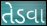
તેડવા